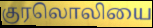
குரலொலியை